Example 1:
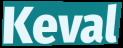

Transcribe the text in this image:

Keval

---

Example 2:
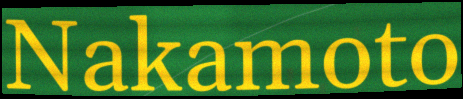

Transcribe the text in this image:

Nakamoto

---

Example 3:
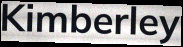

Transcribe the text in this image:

Kimberley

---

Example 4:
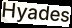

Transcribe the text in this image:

Hyades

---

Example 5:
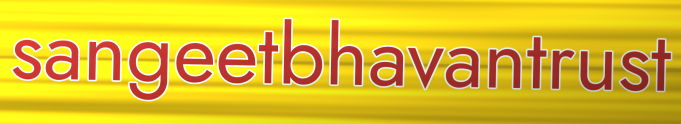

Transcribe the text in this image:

sangeetbhavantrust